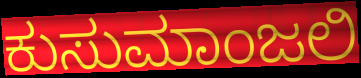
ಕುಸುಮಾಂಜಲಿ